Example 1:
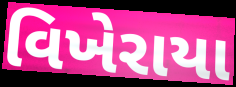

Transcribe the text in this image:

વિખેરાયા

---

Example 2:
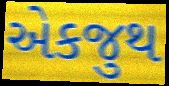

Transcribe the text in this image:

એકજુથ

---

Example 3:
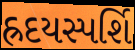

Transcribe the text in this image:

હ્રદયસ્પર્શિ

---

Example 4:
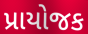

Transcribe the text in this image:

પ્રાયોજક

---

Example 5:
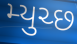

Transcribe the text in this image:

મ્યુચ્છ